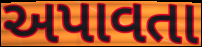
અપાવતા